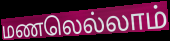
மணலெல்லாம்